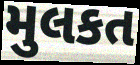
મુલકત